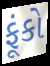
ફૂંકો